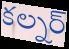
కల్నర్